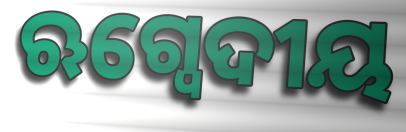
ଋଗ୍ବେଦୀୟ